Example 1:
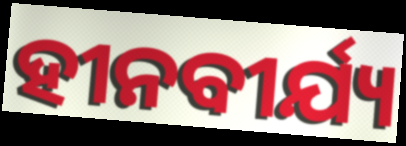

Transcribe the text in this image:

ହୀନବୀର୍ଯ୍ୟ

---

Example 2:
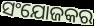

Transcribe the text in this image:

ସଂଯୋଜକର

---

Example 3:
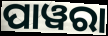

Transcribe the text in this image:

ପାୱରା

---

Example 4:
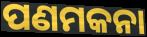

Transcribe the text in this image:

ପଣମକନା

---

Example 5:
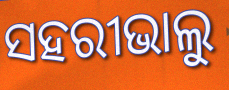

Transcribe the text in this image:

ସହରୀଭାଲୁ